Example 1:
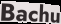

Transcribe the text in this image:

Bachu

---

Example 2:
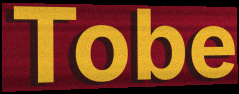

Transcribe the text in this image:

Tobe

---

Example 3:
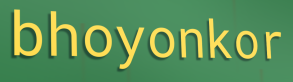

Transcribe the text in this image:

bhoyonkor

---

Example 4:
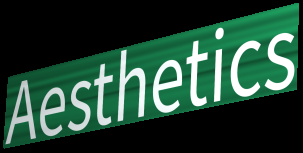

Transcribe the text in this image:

Aesthetics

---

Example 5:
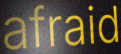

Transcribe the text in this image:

afraid